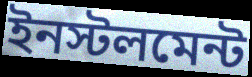
ইনস্টলমেন্ট